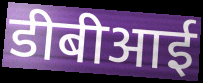
डीबीआई